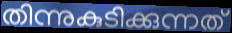
തിന്നുകുടിക്കുന്നത്